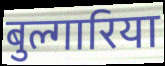
बुल्गारिया